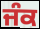
ਜੰਕ